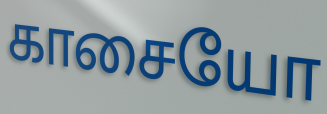
காசையோ